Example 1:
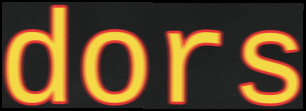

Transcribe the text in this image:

dors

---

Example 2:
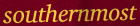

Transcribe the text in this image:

southernmost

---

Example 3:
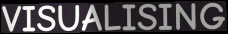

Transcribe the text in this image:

VISUALISING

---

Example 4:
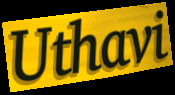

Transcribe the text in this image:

Uthavi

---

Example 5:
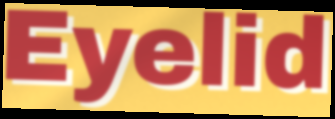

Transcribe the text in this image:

Eyelid